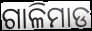
ଗାଳିମାଡ